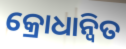
କ୍ରୋଧାନ୍ୱିତ